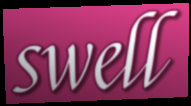
swell